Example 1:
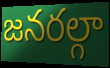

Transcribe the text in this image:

జనరల్గా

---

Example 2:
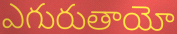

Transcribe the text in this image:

ఎగురుతాయో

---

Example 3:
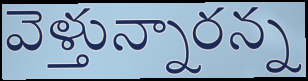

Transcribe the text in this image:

వెళ్తున్నారన్న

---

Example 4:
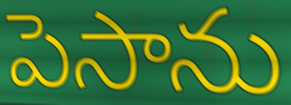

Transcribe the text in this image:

పెసాను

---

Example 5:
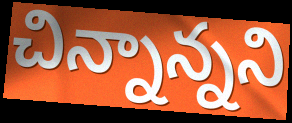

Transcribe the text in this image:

చిన్నాన్నని